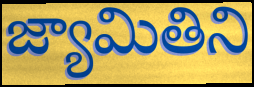
జ్యామితిని